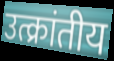
उत्क्रांतीय